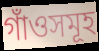
গাঁওসমূহ